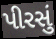
પીરસું